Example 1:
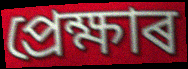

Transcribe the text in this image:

প্ৰেক্ষাৰ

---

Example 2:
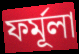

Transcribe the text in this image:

ফৰ্মূলা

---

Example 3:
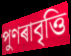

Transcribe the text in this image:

পুণৰাবৃত্তি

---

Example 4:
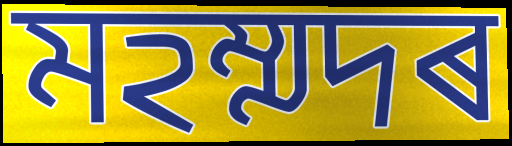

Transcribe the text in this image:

মহম্মদৰ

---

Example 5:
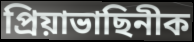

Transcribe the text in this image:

প্ৰিয়াভাছিনীক